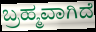
ಬ್ರಹ್ಮವಾಗಿದೆ